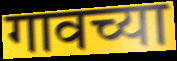
गावच्या